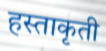
हस्ताकृती